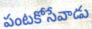
పంటకోసేవాడు